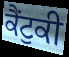
ਕੈਂਟੁਕੀ